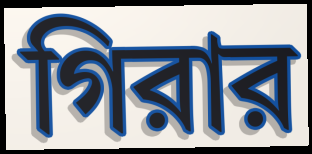
গিরার